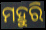
ମହୁରି